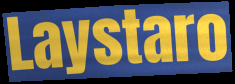
Laystaro